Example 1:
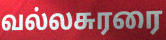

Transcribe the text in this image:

வல்லசுரரை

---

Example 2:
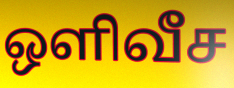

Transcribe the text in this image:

ஒளிவீச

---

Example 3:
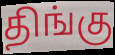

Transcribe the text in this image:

திங்கு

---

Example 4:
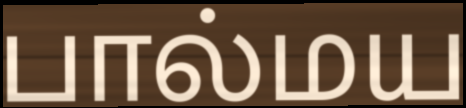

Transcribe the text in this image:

பால்மய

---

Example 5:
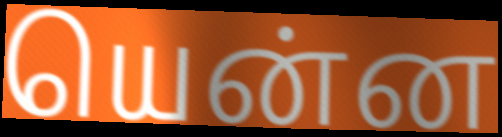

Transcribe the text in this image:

யென்ன